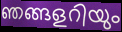
ഞങ്ങളറിയും